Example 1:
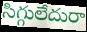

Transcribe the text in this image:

సిగ్గులేదురా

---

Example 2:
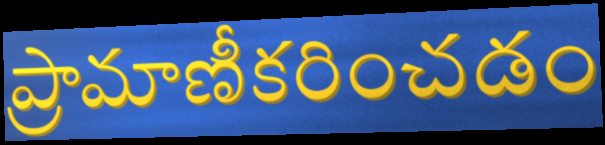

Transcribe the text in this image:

ప్రామాణీకరించడం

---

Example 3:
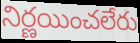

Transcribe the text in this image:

నిర్ణయించలేరు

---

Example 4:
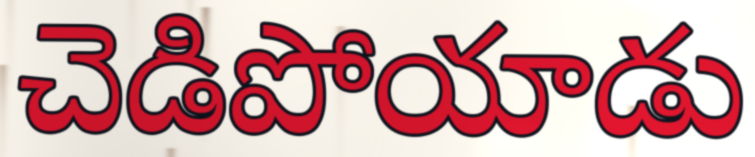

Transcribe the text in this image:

చెడిపోయాడు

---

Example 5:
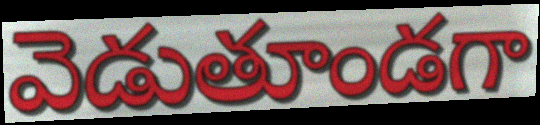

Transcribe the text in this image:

వెడుతూండగా